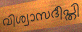
വിശ്വാസദീപ്തി